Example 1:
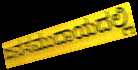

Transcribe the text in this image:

ಜನಸಮುದಾಯದಲ್ಲಿ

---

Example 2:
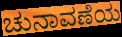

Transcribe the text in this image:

ಚುನಾವಣೆಯ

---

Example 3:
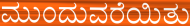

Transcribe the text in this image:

ಮುಂದುವರೆಯಿತು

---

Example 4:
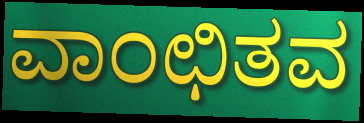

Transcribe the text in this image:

ವಾಂಛಿತವ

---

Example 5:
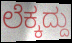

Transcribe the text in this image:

ಲೆಕ್ಕದ್ದು